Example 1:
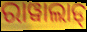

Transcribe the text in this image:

ରାୱାଲାଡ୍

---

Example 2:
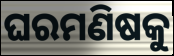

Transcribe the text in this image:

ଘରମଣିଷକୁ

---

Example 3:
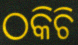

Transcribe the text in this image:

ଠକିଚି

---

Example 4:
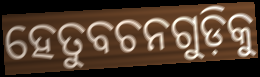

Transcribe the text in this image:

ହେତୁବଚନଗୁଡ଼ିକୁ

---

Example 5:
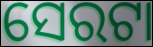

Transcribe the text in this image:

ସେରଟା